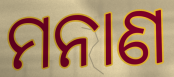
ମନାଣ